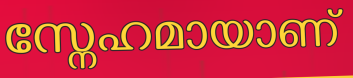
സ്നേഹമായാണ്